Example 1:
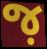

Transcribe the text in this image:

જ઼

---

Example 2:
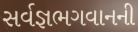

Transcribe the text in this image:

સર્વજ્ઞભગવાનની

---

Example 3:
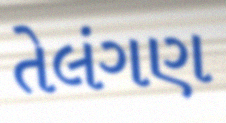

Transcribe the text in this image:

તેલંગણ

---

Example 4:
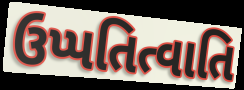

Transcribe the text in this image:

ઉપ્પતિત્વાતિ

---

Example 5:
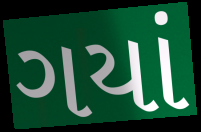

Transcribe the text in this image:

ગયાં